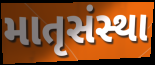
માતૃસંસ્થા